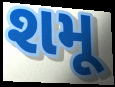
શમૂ